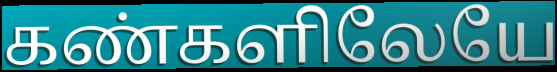
கண்களிலேயே